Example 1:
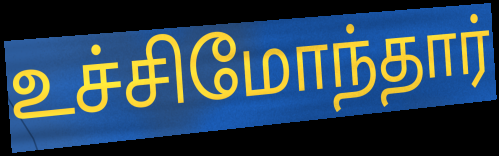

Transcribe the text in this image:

உச்சிமோந்தார்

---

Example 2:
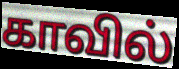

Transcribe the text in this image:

காவில்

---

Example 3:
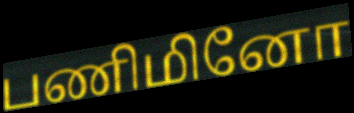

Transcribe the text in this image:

பணிமினோ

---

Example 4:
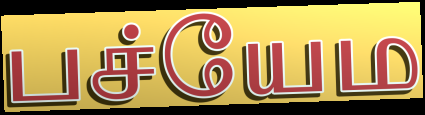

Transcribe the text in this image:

பச்யேம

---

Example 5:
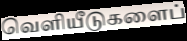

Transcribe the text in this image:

வெளியீடுகளைப்